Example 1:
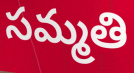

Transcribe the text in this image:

సమ్మతి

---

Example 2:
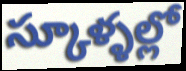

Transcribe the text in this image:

స్కూళ్ళల్లో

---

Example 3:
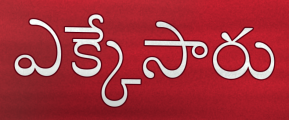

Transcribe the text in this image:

ఎక్కేసారు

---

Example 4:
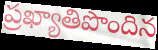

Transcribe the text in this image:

ప్రఖ్యాతిపొందిన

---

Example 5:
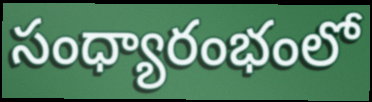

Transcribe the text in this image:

సంధ్యారంభంలో